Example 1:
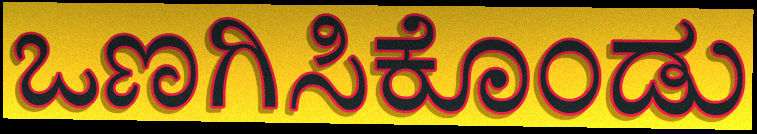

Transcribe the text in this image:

ಒಣಗಿಸಿಕೊಂಡು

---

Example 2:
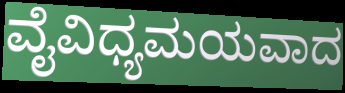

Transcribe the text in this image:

ವೈವಿಧ್ಯಮಯವಾದ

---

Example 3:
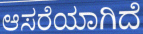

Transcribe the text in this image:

ಆಸರೆಯಾಗಿದೆ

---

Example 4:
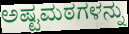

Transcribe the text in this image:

ಅಷ್ಟಮಠಗಳನ್ನು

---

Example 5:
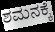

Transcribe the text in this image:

ಶಮನಕ್ಕೆ